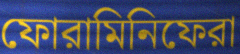
ফোরামিনিফেরা